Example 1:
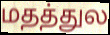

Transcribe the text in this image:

மதத்துல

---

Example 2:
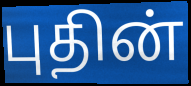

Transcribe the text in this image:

புதின்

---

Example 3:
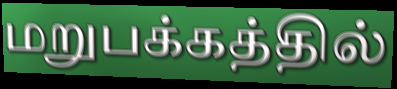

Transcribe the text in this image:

மறுபக்கத்தில்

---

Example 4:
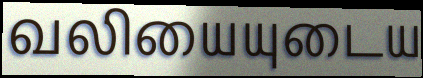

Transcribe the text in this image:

வலியையுடைய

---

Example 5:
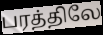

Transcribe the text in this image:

பரத்திலே